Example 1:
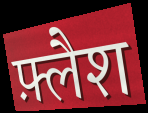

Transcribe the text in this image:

फ़्लैश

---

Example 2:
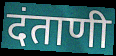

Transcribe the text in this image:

दंताणी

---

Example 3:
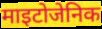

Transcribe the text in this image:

माइटोजेनिक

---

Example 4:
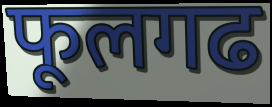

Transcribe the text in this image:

फूलगढ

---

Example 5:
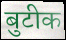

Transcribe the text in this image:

बुटीक